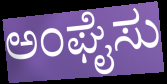
ಅಂಘೈಸು